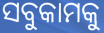
ସବୁକାମକୁ